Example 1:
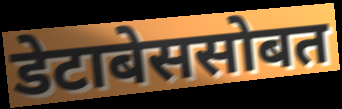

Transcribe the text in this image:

डेटाबेससोबत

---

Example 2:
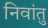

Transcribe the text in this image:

निवांतु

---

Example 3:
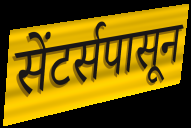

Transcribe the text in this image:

सेंटर्सपासून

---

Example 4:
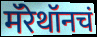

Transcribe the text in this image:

मॅरेथॉनचं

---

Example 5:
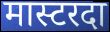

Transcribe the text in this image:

मास्टरदा